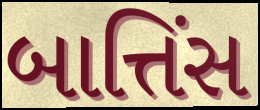
બાત્તિંસ